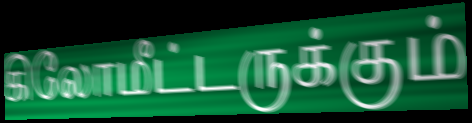
கிலோமீட்டருக்கும்